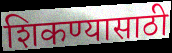
शिकण्यासाठी